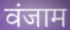
वंजाम